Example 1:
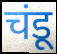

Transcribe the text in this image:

चंडू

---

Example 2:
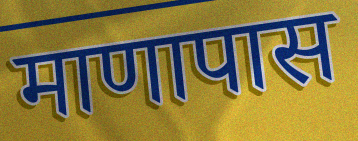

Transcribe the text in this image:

माणापास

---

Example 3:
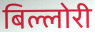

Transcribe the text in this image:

बिल्लोरी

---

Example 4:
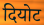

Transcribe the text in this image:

दियोट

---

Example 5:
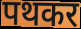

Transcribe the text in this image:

पथकर